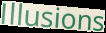
Illusions